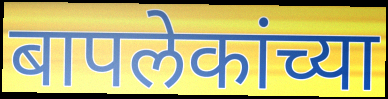
बापलेकांच्या